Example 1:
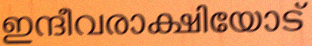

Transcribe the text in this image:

ഇന്ദീവരാക്ഷിയോട്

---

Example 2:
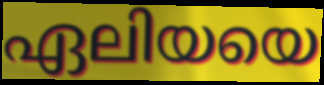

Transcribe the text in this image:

ഏലിയയെ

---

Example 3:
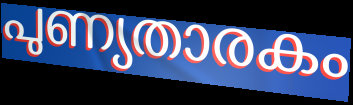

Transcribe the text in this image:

പുണ്യതാരകം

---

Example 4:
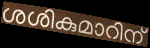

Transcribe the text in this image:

ശശികുമാറിന്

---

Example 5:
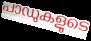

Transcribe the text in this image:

പാഡുകളുടെ